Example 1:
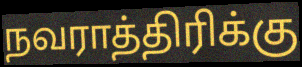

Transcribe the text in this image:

நவராத்திரிக்கு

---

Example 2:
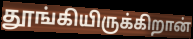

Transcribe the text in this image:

தூங்கியிருக்கிறான்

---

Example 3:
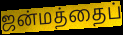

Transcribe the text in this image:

ஜன்மத்தைப்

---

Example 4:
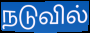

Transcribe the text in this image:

நடுவில்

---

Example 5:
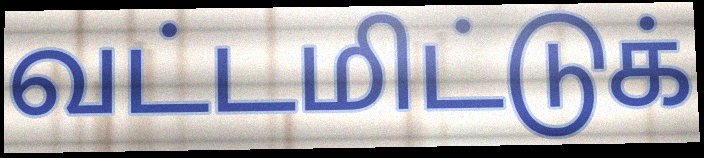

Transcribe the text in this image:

வட்டமிட்டுக்